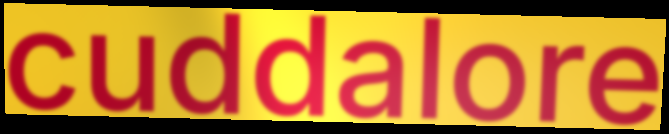
cuddalore